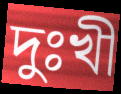
দুঃখী